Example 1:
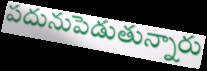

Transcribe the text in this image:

పదునుపెడుతున్నారు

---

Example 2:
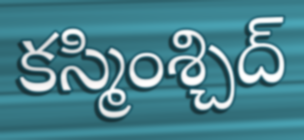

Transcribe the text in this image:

కస్మింశ్చిద్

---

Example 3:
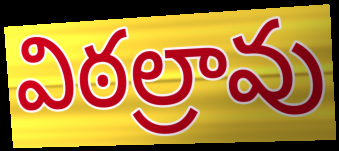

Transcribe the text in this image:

విఠల్రావు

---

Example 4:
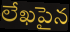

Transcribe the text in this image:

లేఖపైన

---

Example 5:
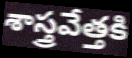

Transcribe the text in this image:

శాస్త్రవేత్తకి